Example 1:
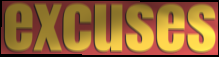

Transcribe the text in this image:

excuses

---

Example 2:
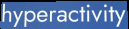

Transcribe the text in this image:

hyperactivity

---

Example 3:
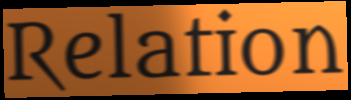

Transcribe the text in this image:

Relation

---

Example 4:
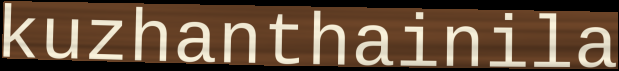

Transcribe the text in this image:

kuzhanthainila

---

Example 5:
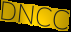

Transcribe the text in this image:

DNCC